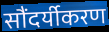
सौंदर्यीकरण